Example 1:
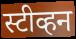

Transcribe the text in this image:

स्टीव्हन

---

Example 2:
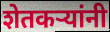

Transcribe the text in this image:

शेतकर्‍यांनी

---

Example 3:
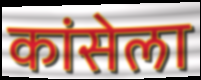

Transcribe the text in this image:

कांसेला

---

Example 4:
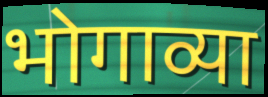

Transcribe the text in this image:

भोगाव्या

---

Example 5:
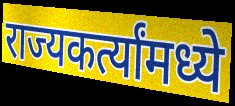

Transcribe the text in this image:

राज्यकर्त्यांमध्ये